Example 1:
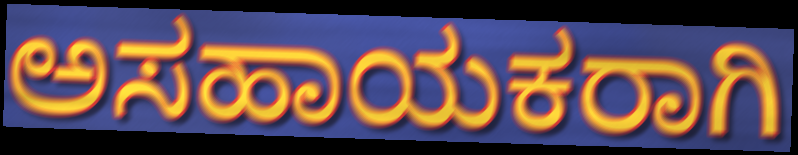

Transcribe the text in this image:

ಅಸಹಾಯಕರಾಗಿ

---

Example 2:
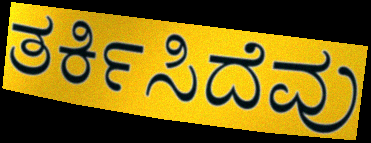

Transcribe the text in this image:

ತರ್ಕಿಸಿದೆವು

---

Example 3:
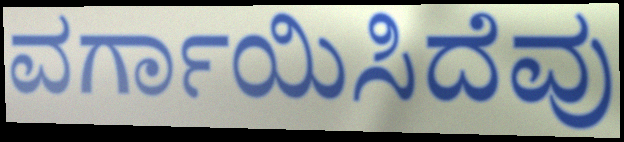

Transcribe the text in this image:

ವರ್ಗಾಯಿಸಿದೆವು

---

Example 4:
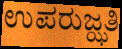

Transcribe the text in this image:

ಉಪರುಜ್ಝತಿ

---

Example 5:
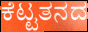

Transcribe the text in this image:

ಕೆಟ್ಟತನದ